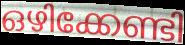
ഒഴിക്കേണ്ടി